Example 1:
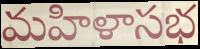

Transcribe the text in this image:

మహిళాసభ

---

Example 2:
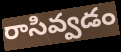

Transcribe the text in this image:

రాసివ్వడం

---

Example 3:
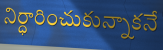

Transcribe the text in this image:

నిర్ధారించుకున్నాకనే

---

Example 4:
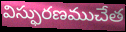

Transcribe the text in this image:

విస్ఫురణముచేత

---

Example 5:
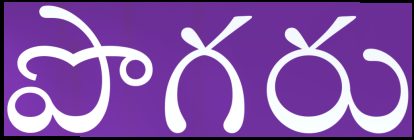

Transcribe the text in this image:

పొగరు